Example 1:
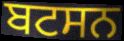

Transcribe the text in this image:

ਬਟਸਨ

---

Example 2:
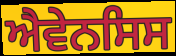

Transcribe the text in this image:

ਐਵੇਨਸਿਸ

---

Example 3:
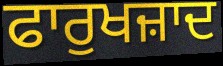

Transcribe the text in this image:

ਫਾਰੁਖਜ਼ਾਦ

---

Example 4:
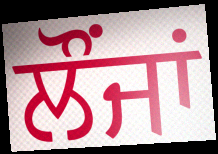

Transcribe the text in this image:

ਲੌਂਜਾਂ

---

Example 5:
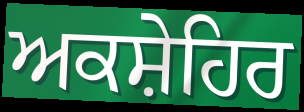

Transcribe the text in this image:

ਅਕਸ਼ੇਹਿਰ